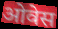
ओवेस